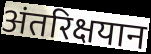
अंतरिक्षयान